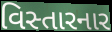
વિસ્તારનાર